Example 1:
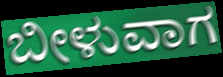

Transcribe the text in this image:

ಬೀಳುವಾಗ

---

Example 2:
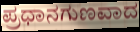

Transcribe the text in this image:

ಪ್ರಧಾನಗುಣವಾದ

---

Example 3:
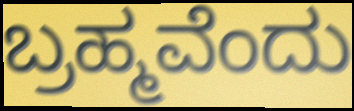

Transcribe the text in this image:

ಬ್ರಹ್ಮವೆಂದು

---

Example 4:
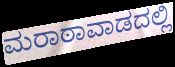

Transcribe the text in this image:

ಮರಾಠಾವಾಡದಲ್ಲಿ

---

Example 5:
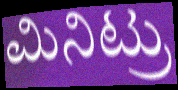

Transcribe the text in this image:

ಮಿನಿಟ್ರು